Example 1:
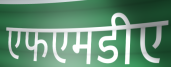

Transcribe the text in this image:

एफएमडीए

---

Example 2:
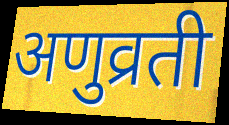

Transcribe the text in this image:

अणुव्रती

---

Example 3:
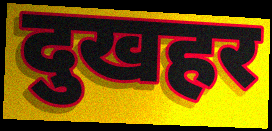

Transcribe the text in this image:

दुखहर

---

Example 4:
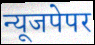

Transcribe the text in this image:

न्यूजपेपर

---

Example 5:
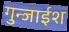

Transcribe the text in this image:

गुन्जाईश